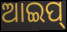
ଆଇପ୍